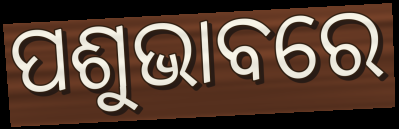
ପଶୁଭାବରେ